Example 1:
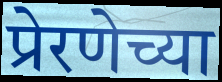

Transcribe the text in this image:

प्रेरणेच्या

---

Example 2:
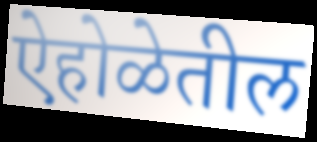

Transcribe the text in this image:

ऐहोळेतील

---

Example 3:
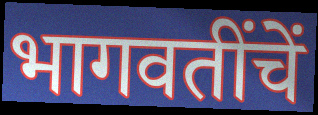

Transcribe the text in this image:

भागवतींचें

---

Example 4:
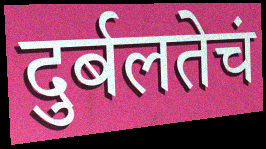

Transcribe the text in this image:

दुर्बलतेचं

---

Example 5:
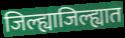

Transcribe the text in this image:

जिल्ह्याजिल्ह्यात